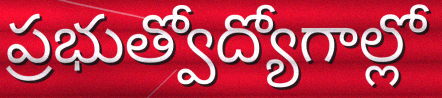
ప్రభుత్వోద్యోగాల్లో